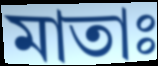
মাতাঃ